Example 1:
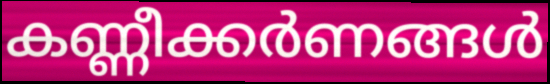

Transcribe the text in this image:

കണ്ണീക്കർണങ്ങൾ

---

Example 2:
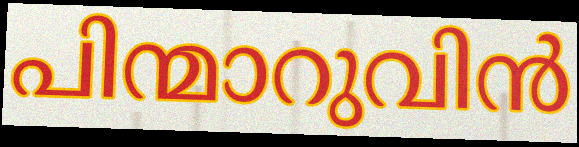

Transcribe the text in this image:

പിന്മാറുവിൻ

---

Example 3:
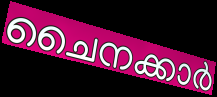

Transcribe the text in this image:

ചൈനക്കാർ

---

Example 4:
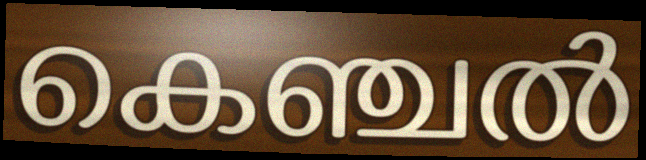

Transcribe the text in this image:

കെഞ്ചൽ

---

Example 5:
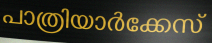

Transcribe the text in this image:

പാത്രിയാർക്കേസ്